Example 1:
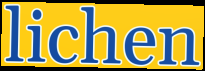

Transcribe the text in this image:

lichen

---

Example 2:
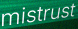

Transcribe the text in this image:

mistrust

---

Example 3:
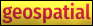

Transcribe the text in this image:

geospatial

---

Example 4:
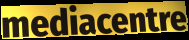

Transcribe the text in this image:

mediacentre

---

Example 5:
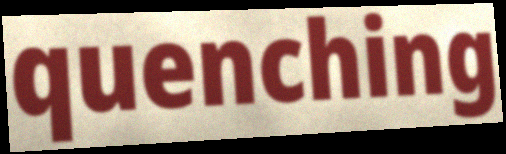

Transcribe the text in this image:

quenching